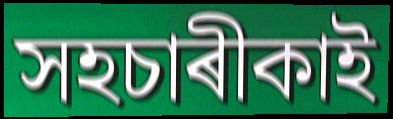
সহচাৰীকাই